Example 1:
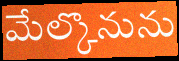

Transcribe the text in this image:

మేల్కొనును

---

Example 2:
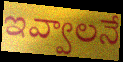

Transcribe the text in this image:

ఇవ్వాలనే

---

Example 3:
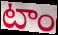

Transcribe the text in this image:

టాం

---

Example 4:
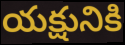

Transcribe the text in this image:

యక్షునికి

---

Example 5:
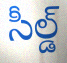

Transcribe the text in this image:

సీల్డ్